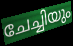
ചേച്ചിയും